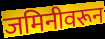
जमिनीवरून